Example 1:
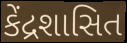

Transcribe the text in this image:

કેંદ્રશાસિત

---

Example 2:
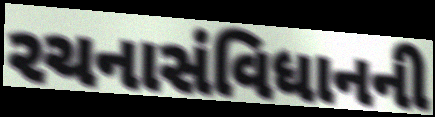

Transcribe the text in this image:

રચનાસંવિધાનની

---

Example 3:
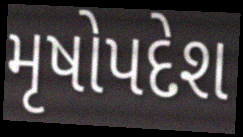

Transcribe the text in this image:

મૃષોપદેશ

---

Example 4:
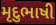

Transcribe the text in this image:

મૃદુભાષી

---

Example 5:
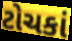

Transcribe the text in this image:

ટોચકાં